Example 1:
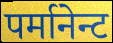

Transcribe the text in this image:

पर्मानेन्ट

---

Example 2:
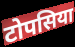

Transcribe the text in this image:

टोपसिया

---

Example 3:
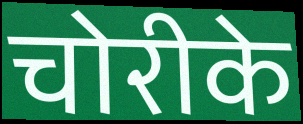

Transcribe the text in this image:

चोरीके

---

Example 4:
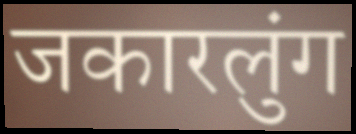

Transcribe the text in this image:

जकारलुंग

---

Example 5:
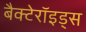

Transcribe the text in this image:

बैक्टेरॉइड्स